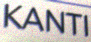
KANTI